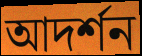
আদর্শন